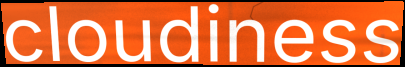
cloudiness